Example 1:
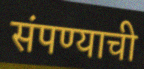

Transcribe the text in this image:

संपण्याची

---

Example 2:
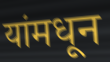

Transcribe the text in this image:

यांमधून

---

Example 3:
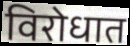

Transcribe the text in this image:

विरोधात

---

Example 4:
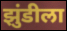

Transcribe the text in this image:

झुंडीला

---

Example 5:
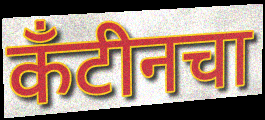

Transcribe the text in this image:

कँटीनचा